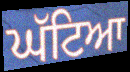
ਘੱਟਿਆ